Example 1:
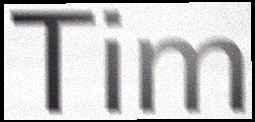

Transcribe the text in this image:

Tim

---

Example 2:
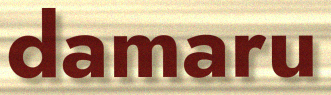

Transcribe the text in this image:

damaru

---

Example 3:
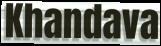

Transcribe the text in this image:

Khandava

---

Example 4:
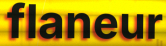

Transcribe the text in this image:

flaneur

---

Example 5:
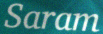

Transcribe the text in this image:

Saram